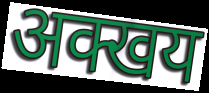
अक्खय